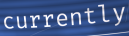
currently